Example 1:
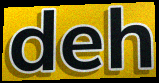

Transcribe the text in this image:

deh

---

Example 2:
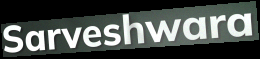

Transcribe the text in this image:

Sarveshwara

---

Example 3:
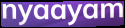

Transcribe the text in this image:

nyaayam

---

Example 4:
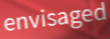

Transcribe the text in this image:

envisaged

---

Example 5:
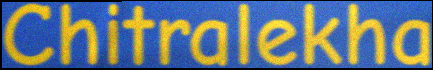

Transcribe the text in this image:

Chitralekha